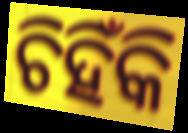
ଚିହିଁକି